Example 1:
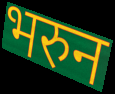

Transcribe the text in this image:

भरुन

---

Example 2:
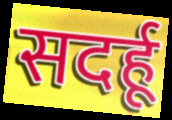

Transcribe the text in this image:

सदर्हू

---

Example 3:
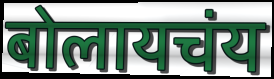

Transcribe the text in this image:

बोलायचंय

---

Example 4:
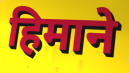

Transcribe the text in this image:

हिमाने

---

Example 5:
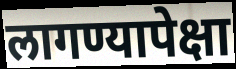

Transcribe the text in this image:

लागण्यापेक्षा